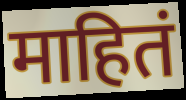
माहितं